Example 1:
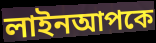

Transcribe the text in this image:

লাইনআপকে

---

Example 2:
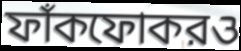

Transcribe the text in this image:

ফাঁকফোকরও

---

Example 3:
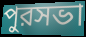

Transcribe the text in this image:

পুরসভা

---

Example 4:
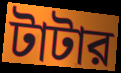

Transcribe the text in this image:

টাটার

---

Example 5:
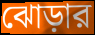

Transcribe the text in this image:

ঝোড়ার